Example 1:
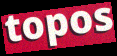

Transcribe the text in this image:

topos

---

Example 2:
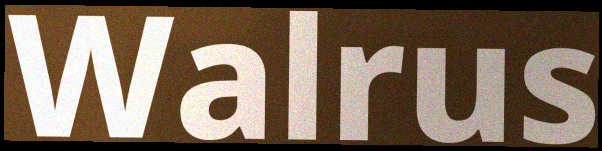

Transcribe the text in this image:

Walrus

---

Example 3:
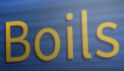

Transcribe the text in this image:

Boils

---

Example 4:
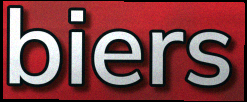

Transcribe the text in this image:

biers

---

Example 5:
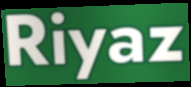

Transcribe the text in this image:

Riyaz